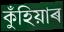
কুঁহিয়াৰ